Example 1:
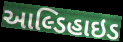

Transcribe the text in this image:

આલ્ડિહાઇડ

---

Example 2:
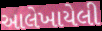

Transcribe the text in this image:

આલેખાયેલી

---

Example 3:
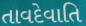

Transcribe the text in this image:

તાવદેવાતિ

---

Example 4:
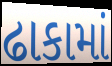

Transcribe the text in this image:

ઢાકામાં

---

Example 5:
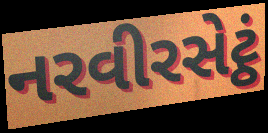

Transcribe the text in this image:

નરવીરસેટ્ઠં